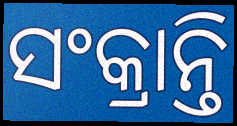
ସଂକ୍ରାନ୍ତି